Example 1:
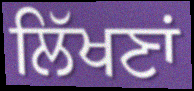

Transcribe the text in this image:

ਲਿੱਖਣਾਂ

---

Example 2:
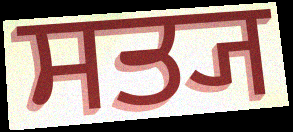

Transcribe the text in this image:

ਸਤ੍ਯ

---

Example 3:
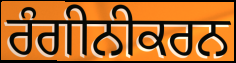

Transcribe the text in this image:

ਰੰਗੀਨੀਕਰਨ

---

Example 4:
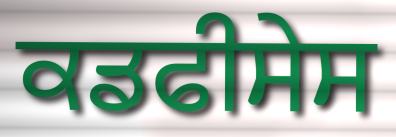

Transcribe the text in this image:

ਕਡਫੀਸੇਸ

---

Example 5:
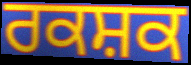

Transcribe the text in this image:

ਰਕਸ਼ਕ